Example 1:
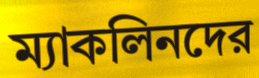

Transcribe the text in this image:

ম্যাকলিনদের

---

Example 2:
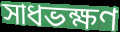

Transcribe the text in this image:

সাধভক্ষণ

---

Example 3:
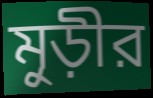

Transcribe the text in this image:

মুড়ীর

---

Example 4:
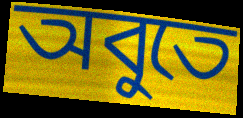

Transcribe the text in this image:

অবুতে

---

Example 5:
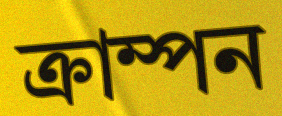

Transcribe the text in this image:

ক্রাম্পন